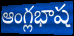
ఆంగ్లభాష